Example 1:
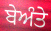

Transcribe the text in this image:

ਬੇਅੰਤੇ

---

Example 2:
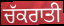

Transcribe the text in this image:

ਚੱਕਰਾਤੀ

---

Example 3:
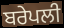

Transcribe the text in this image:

ਬਰੇਪਲੀ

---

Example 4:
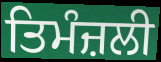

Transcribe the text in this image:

ਤਿਮੰਜ਼ਲੀ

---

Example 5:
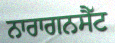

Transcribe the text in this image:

ਨਾਰਾਗਨਸੈੱਟ